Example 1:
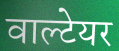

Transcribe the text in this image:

वाल्टेयर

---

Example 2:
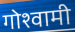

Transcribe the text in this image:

गोश्वामी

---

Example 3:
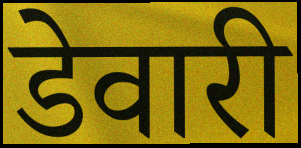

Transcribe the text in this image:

डेवारी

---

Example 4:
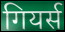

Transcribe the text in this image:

गियर्स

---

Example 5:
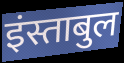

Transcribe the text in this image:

इंस्ताबुल